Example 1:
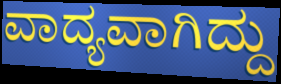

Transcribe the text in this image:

ವಾದ್ಯವಾಗಿದ್ದು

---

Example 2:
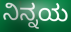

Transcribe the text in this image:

ನಿನ್ನಯ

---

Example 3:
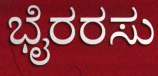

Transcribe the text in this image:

ಭೈರರಸು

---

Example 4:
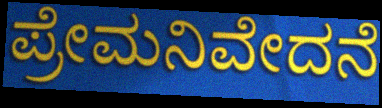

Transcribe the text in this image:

ಪ್ರೇಮನಿವೇದನೆ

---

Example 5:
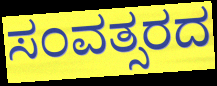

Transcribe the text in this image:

ಸಂವತ್ಸರದ